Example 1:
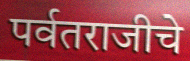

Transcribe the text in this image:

पर्वतराजीचे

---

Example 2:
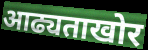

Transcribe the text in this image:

आढ्यताखोर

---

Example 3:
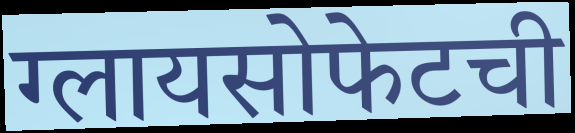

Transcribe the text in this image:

ग्लायसोफेटची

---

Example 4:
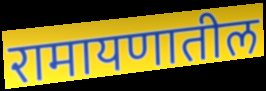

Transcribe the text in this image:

रामायणातील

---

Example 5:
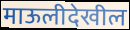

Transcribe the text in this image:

माऊलीदेखील